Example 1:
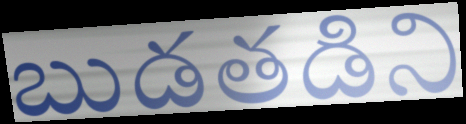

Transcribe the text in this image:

బుడతడిని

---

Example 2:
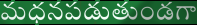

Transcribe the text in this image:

మధనపడుతుండగా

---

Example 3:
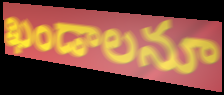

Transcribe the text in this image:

ఖండాలనూ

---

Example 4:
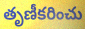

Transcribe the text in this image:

తృణీకరించు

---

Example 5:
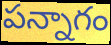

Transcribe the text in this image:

పన్నాగం